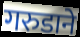
गरुडाने